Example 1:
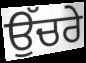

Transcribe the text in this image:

ਉੱਚਰੇ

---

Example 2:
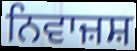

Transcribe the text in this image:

ਨਿਵਾਜ਼ਸ਼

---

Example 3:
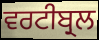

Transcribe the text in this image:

ਵਰਟੀਬ੍ਰਲ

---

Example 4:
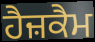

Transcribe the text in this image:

ਹੈਜ਼ਕੈਮ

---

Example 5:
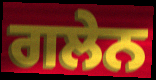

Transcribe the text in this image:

ਗਲੇਨ